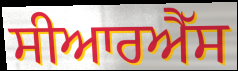
ਸੀਆਰਐੱਸ